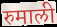
रुमाली